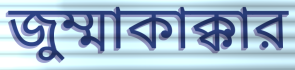
জুম্মাকাক্কার